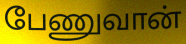
பேணுவான்